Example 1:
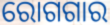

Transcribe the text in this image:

ରୋଗଗାର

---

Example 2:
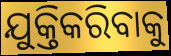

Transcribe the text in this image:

ଯୁକ୍ତିକରିବାକୁ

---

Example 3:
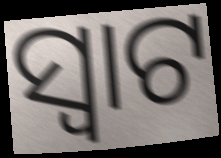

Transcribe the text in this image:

ସ୍ୱାଟ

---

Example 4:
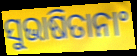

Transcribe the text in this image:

ସୁଭାଷିତାନାଂ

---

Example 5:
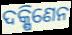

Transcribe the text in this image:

ଦକ୍ଷିଣେନ